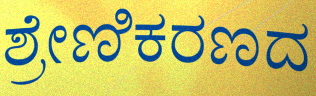
ಶ್ರೇಣಿಕರಣದ